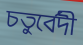
চতুৰ্বেদী